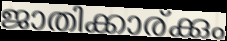
ജാതിക്കാര്ക്കും